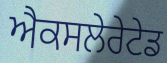
ਐਕਸਲੇਰੇਟੇਡ